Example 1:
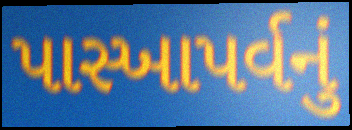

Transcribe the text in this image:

પાસ્ખાપર્વનું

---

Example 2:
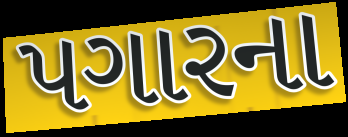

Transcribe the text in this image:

પગારના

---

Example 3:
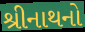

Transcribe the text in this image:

શ્રીનાથનો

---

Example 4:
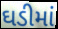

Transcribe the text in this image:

ઘડીમાં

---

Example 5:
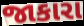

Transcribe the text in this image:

જાકારા